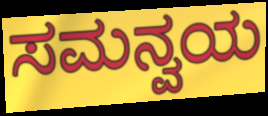
ಸಮನ್ವಯ